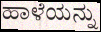
ಹಾಳೆಯನ್ನು